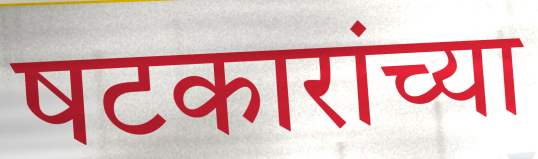
षटकारांच्या